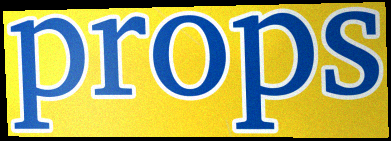
props